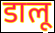
डालू